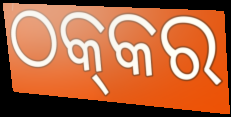
ଠକ୍‍କର